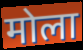
मोला